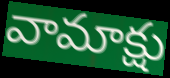
వామాక్షు